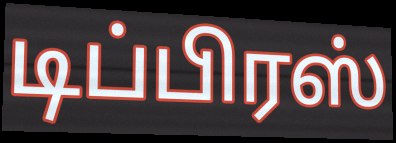
டிப்பிரஸ்